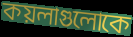
কয়লাগুলোকে